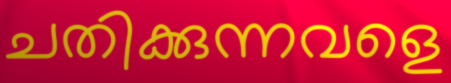
ചതിക്കുന്നവളെ